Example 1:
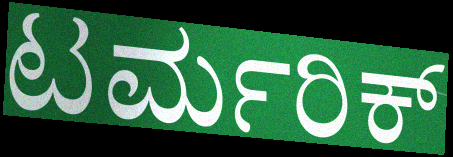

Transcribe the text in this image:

ಟರ್ಮರಿಕ್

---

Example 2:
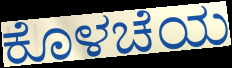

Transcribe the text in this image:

ಕೊಳಚೆಯ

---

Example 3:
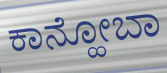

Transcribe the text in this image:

ಕಾನ್ಹೋಬಾ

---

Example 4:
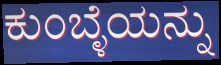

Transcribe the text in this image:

ಕುಂಬ್ಳೆಯನ್ನು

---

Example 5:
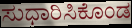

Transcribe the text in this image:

ಸುಧಾರಿಸಿಕೊಂಡ